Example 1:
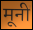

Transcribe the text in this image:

मूनी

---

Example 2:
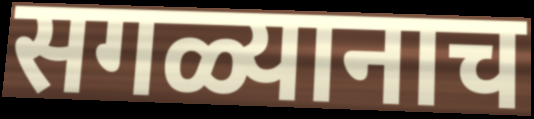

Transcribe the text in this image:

सगळ्यानाच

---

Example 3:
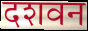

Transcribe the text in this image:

दशवन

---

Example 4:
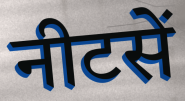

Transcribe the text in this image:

नीटसें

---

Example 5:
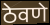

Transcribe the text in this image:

ठेवणे